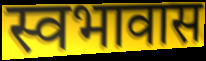
स्वभावास